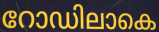
റോഡിലാകെ